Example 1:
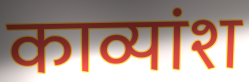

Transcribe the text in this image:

काव्यांश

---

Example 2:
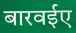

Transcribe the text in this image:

बारवईए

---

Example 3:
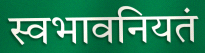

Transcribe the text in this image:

स्वभावनियतं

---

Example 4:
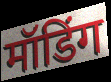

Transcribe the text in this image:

मॉडिंग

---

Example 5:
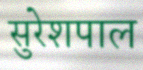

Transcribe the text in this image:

सुरेशपाल